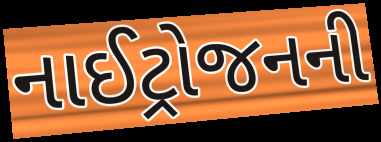
નાઈટ્રોજનની